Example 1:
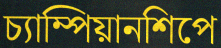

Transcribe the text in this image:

চ্যাম্পিয়ানশিপে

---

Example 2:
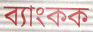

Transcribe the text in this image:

ব্যাংকক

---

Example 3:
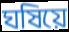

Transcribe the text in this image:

ঘষিয়ে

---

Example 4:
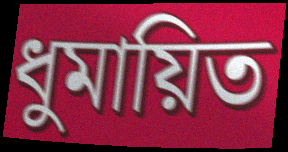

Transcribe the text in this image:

ধুমায়িত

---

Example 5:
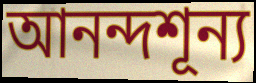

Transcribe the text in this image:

আনন্দশূন্য